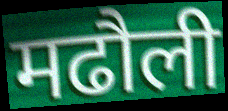
मढौली